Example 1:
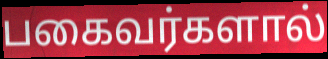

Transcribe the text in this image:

பகைவர்களால்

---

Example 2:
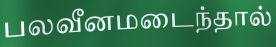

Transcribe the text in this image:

பலவீனமடைந்தால்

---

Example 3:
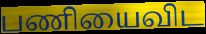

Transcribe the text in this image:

பணியைவிட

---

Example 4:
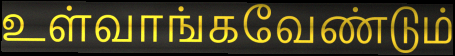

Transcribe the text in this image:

உள்வாங்கவேண்டும்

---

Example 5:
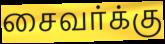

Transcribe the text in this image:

சைவர்க்கு